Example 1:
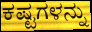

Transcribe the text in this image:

ಕಷ್ಟಗಳನ್ನು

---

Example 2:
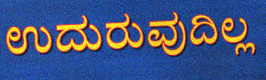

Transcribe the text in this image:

ಉದುರುವುದಿಲ್ಲ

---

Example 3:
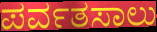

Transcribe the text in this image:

ಪರ್ವತಸಾಲು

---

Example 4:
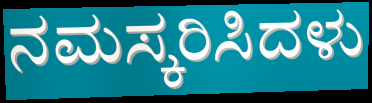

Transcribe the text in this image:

ನಮಸ್ಕರಿಸಿದಳು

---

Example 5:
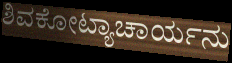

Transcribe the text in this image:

ಶಿವಕೋಟ್ಯಾಚಾರ್ಯನು